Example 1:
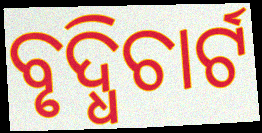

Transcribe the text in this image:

ବୃଦ୍ଧିଚାର୍ଟ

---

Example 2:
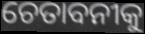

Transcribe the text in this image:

ଚେତାବନୀକୁ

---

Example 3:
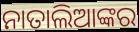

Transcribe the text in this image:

ନାତାଲିଆଙ୍କର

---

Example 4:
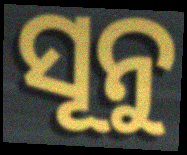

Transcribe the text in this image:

ସୂନୁ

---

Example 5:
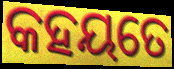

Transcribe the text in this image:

କହୟତେ